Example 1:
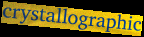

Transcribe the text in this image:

crystallographic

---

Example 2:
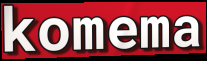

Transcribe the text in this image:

komema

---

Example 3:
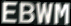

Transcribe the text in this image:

EBWM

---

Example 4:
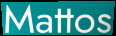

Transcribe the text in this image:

Mattos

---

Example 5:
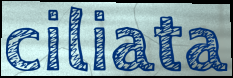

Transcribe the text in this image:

ciliata